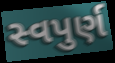
સ્વપુર્ણ